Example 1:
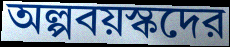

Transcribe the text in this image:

অল্পবয়স্কদের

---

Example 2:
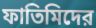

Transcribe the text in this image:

ফাতিমিদের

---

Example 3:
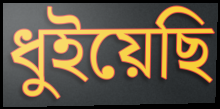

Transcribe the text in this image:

ধুইয়েছি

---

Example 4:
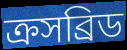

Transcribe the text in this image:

ক্রসব্রিড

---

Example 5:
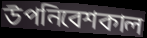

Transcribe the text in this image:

উপনিবেশকাল